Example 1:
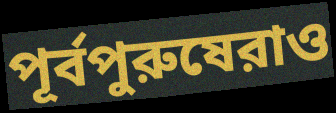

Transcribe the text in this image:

পূর্বপুরুষেরাও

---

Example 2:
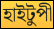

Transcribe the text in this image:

হাইটুপী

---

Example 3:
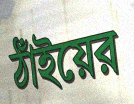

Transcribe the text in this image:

ঠাঁইয়ের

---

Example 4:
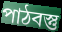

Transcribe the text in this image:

পাঠবস্তু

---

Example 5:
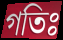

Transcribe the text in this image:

গতিঃ